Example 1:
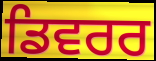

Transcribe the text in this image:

ਡਿਵਰਰ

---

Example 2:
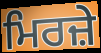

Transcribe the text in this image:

ਮਿਰਜ਼ੇ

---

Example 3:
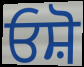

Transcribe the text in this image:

ਓਸ਼ੋ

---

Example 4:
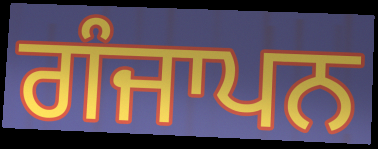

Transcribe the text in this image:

ਗੰਜਾਪਨ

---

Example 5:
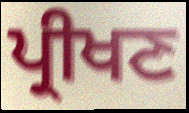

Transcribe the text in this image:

ਪ੍ਰੀਖਣ